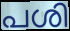
പശി